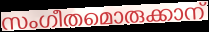
സംഗീതമൊരുക്കാന്